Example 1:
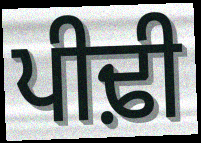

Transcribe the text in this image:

ਪੀਢ਼ੀ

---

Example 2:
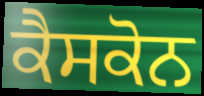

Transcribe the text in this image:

ਕੈਸਕੋਨ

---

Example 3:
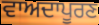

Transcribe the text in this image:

ਵਾਅਦਾਪੂਰਣ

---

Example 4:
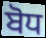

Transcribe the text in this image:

ਬੋਧ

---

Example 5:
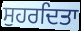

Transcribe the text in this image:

ਸੁਹਰਦਿਤਾ